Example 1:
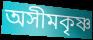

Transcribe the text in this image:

অসীমকৃষ্ণ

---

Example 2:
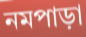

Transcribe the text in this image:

নমপাড়া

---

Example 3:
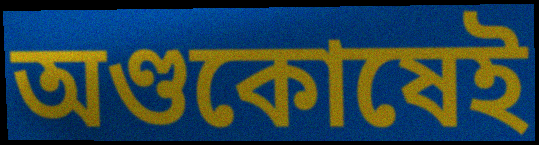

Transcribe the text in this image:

অণ্ডকোষেই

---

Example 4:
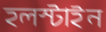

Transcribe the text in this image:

হলস্টাইন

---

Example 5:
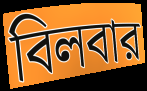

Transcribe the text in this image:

বিলবার